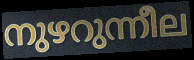
നുഴറുന്നീല